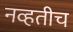
नव्हतीच